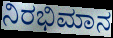
ನಿರಭಿಮಾನ